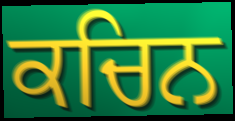
ਕਚਿਨ